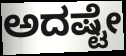
ಅದಷ್ಟೇ